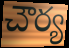
చౌర్య